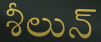
శీలున్